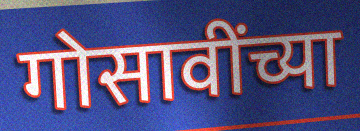
गोसावींच्या